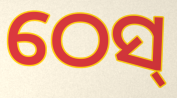
ଠେସ୍